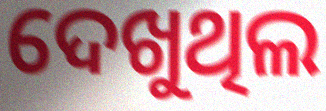
ଦେଖୁଥିଲ